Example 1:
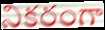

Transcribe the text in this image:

నికరంగా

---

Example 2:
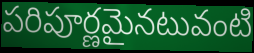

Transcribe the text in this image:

పరిపూర్ణమైనటువంటి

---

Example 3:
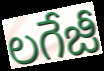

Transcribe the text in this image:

లగేజీ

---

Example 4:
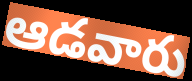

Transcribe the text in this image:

ఆడవారు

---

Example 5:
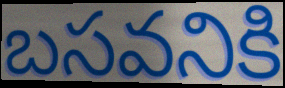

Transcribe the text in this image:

బసవనికి